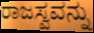
ರಾಜಸ್ವವನ್ನು